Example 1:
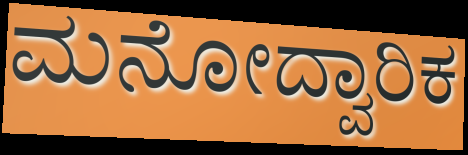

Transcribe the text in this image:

ಮನೋದ್ವಾರಿಕ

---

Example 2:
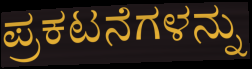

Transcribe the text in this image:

ಪ್ರಕಟನೆಗಳನ್ನು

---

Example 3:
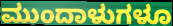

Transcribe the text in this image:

ಮುಂದಾಳುಗಳೂ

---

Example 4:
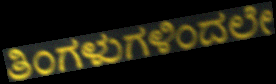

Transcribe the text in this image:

ತಿಂಗಳುಗಳಿಂದಲೇ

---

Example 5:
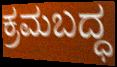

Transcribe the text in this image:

ಕ್ರಮಬದ್ಧ